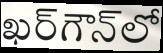
ఖర్‌గౌన్‌లో